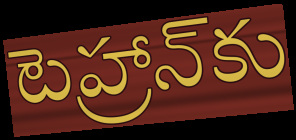
టెహ్రాన్‌కు